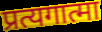
प्रत्यगात्मा